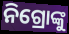
ନିଗ୍ରୋଙ୍କୁ